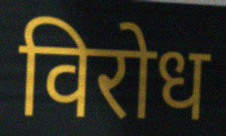
विरोध